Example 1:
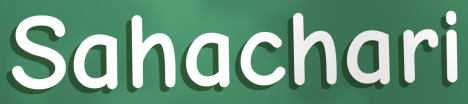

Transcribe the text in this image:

Sahachari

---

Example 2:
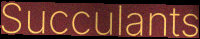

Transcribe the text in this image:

Succulants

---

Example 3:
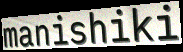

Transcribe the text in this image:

manishiki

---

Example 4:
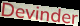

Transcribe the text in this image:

Devinder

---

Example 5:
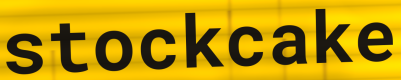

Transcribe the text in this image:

stockcake